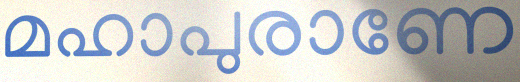
മഹാപുരാണേ